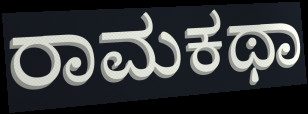
ರಾಮಕಥಾ